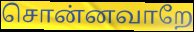
சொன்னவாறே